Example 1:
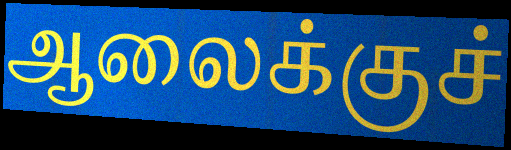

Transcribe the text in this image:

ஆலைக்குச்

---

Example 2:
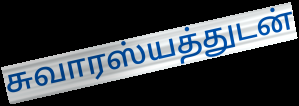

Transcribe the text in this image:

சுவாரஸ்யத்துடன்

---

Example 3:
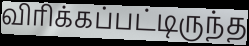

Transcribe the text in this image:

விரிக்கப்பட்டிருந்த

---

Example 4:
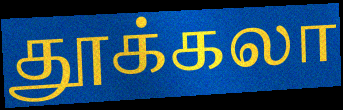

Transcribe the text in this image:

தூக்கலா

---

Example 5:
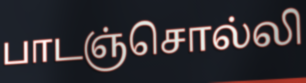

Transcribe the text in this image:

பாடஞ்சொல்லி